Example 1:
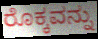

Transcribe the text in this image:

ರೊಕ್ಕವನ್ನು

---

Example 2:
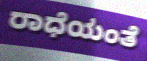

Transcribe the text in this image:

ರಾಧೆಯಂತೆ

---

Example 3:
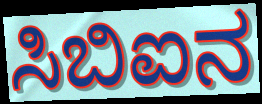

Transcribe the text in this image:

ಸಿಬಿಐನ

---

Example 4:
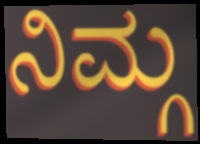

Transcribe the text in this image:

ನಿಮ್ಗ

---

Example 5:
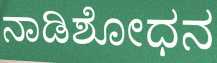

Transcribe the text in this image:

ನಾಡಿಶೋಧನ